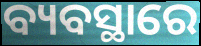
ବ୍ୟବସ୍ଥାରେ